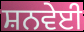
ਸ਼ਨਵੇਈ